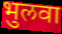
भुलवा